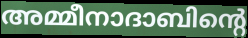
അമ്മീനാദാബിന്റെ